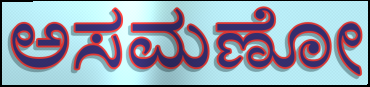
ಅಸಮಣೋ